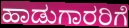
ಹಾಡುಗಾರರಿಗೆ